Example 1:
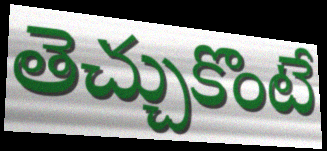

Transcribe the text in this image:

తెచ్చుకొంటే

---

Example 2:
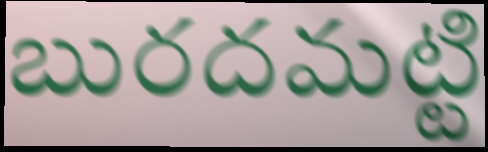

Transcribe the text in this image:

బురదమట్టి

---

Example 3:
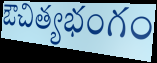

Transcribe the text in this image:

ఔచిత్యభంగం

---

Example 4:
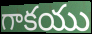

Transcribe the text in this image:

గాకయు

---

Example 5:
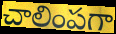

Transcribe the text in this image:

చాలింపగా